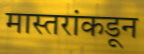
मास्तरांकडून